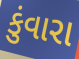
કુંવારા